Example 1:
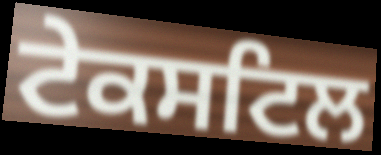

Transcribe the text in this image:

ਟੇਕਸਟਿਲ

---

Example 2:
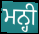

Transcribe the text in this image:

ਮਨ੍ਹੀ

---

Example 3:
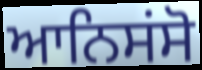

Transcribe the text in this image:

ਆਨਿਸਂਸੋ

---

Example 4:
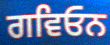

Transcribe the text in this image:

ਗਵਿਓਨ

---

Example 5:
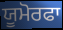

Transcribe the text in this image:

ਯੂਮੋਰਫਾ